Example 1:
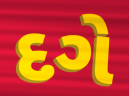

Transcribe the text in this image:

દગે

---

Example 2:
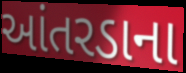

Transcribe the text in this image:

આંતરડાના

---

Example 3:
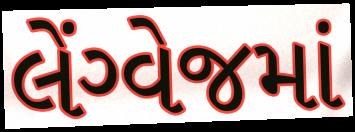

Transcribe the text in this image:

લેંગ્વેજમાં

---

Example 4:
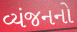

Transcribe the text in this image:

વ્યંજનનો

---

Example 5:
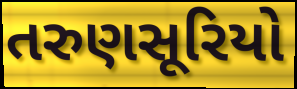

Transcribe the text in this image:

તરુણસૂરિયો